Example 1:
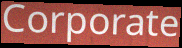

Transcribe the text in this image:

Corporate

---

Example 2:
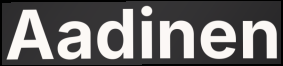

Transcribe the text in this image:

Aadinen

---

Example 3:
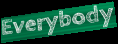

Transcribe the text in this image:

Everybody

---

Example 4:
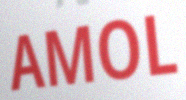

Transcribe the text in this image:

AMOL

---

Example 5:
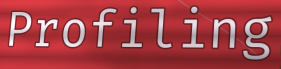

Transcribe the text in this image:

Profiling